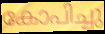
കോപിച്ചു